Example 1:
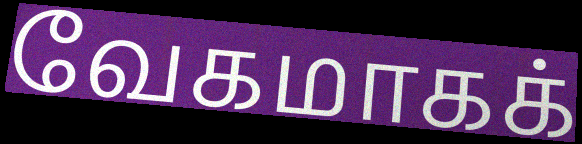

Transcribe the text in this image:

வேகமாகக்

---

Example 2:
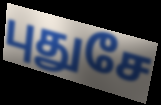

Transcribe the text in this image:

புதுசே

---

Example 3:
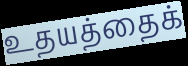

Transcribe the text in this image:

உதயத்தைக்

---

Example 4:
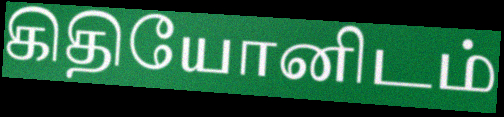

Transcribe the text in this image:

கிதியோனிடம்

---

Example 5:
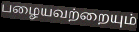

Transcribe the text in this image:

பழையவற்றையும்